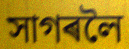
সাগৰলৈ